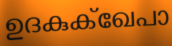
ഉദകുക്ഖേപാ